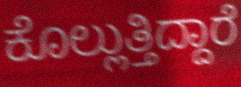
ಕೊಲ್ಲುತ್ತಿದ್ದಾರೆ